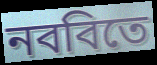
নববিতে